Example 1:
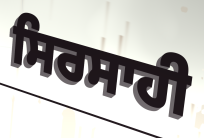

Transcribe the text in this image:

ਸਿਰਸਾਹੀ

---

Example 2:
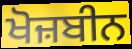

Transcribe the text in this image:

ਖੋਜ਼ਬੀਨ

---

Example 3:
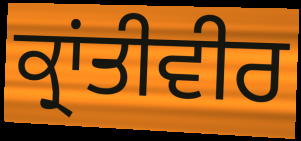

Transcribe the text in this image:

ਕ੍ਰਾਂਤੀਵੀਰ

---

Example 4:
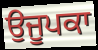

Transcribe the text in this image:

ਉਜੂਪਕਾ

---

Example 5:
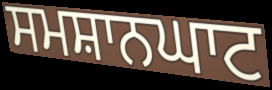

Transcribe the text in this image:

ਸਮਸ਼ਾਨਘਾਟ